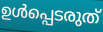
ഉൾപ്പെടരുത്